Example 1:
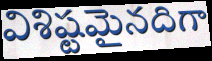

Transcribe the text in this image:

విశిష్టమైనదిగా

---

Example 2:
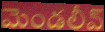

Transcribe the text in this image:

మెండలీవ్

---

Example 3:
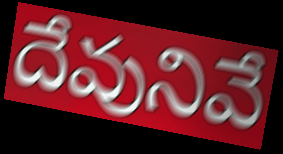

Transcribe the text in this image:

దేవునివే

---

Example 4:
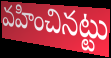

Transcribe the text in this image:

వహించినట్టు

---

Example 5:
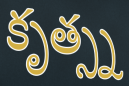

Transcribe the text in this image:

కృత్స్న